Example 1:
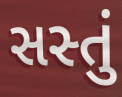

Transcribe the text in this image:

સસ્તું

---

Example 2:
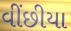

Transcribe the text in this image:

વીંછીયા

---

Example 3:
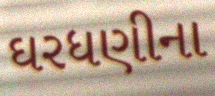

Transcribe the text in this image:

ઘરધણીના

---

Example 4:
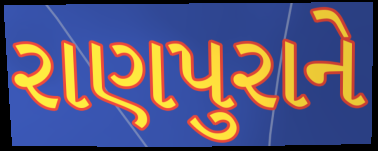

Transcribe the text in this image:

રાણપુરાને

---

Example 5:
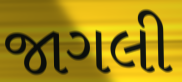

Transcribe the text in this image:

જાગલી